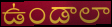
ఉండాలా